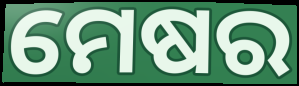
ମେଷର